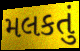
મલકતું